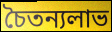
চৈতন্যলাভ